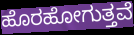
ಹೊರಹೋಗುತ್ತವೆ